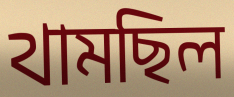
থামছিল